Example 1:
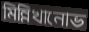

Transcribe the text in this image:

মিন্নিখানোভ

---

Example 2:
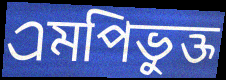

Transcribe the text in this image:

এমপিভুক্ত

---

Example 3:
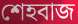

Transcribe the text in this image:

শেহবাজ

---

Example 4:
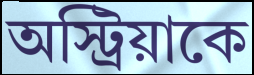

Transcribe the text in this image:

অস্ট্রিয়াকে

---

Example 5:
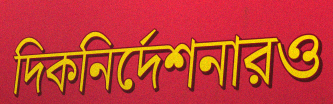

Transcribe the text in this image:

দিকনির্দেশনারও